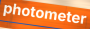
photometer